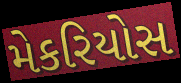
મેકરિયોસ